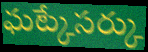
ఘట్కేసర్కు